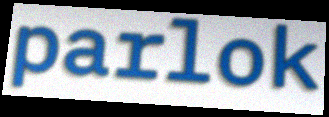
parlok